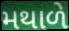
મથાળે